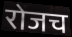
रोजच